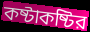
কষ্টাকষ্টির